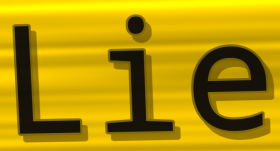
Lie